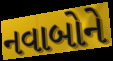
નવાબોને